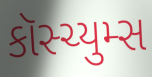
કૉસ્ચ્યુમ્સ